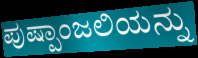
ಪುಷ್ಪಾಂಜಲಿಯನ್ನು